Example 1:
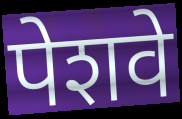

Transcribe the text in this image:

पेशवे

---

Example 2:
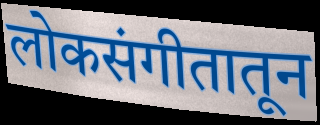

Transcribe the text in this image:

लोकसंगीतातून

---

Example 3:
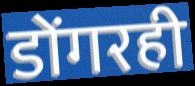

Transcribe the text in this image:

डोंगरही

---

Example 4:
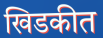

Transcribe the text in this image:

खिडकीत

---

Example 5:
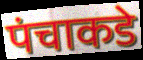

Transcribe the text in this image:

पंचाकडे